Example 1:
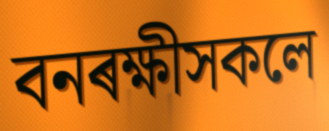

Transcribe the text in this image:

বনৰক্ষীসকলে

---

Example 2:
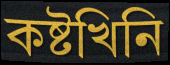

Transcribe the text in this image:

কষ্টখিনি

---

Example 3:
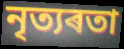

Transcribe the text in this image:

নৃত্যৰতা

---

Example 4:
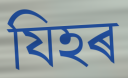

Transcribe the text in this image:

যিহৰ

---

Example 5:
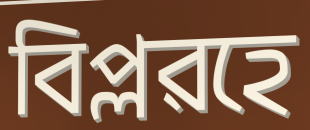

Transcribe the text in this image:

বিপ্লৱহে